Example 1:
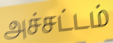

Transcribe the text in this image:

அச்சட்டம்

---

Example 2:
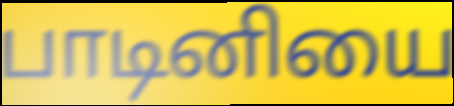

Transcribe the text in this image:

பாடினியை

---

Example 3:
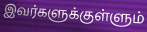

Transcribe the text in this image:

இவர்களுக்குள்ளும்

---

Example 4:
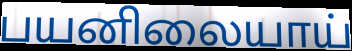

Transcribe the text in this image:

பயனிலையாய்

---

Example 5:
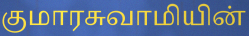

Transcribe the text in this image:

குமாரசுவாமியின்